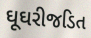
ઘૂઘરીજડિત